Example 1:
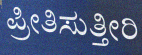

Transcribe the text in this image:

ಪ್ರೀತಿಸುತ್ತೀರಿ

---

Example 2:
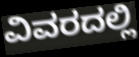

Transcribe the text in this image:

ವಿವರದಲ್ಲಿ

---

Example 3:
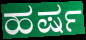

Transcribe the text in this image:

ಹರ್ಷ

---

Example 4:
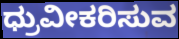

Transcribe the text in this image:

ಧ್ರುವೀಕರಿಸುವ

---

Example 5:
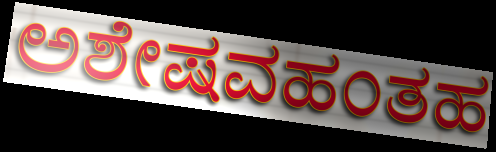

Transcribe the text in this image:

ಅಶೇಷವಹಂತಹ